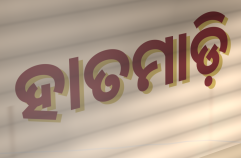
ହାତମାଡ଼ି